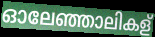
ഓലേഞ്ഞാലികള്